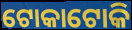
ଟୋକାଟୋକି